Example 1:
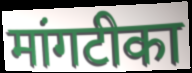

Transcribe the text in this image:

मांगटीका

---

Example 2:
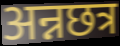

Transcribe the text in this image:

अन्नछत्र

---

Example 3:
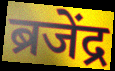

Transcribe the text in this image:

ब्रजेंद्र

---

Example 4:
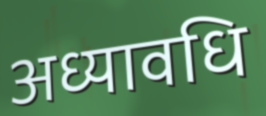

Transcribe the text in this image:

अध्यावधि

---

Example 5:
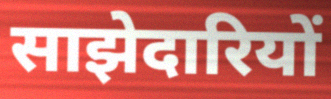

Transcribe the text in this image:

साझेदारियों